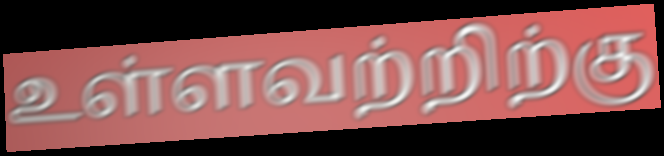
உள்ளவற்றிற்கு